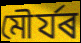
মৌৰ্যৰ